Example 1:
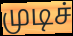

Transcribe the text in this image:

முடிச்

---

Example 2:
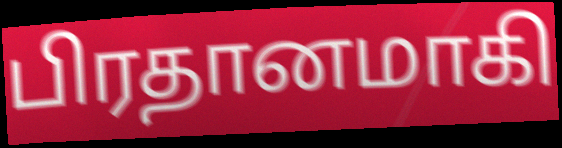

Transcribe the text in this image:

பிரதானமாகி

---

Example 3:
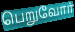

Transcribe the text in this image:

பெறுவோர்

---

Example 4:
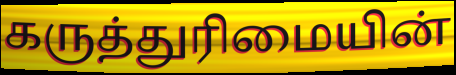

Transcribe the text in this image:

கருத்துரிமையின்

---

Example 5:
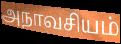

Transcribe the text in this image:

அநாவசியம்